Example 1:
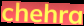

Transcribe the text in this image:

chehra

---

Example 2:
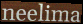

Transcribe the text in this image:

neelima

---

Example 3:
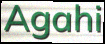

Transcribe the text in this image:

Agahi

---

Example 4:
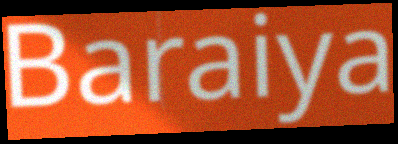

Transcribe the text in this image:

Baraiya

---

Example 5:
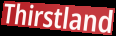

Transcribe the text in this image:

Thirstland